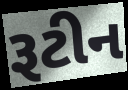
રૂટીન